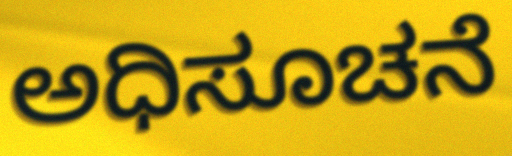
ಅಧಿಸೂಚನೆ